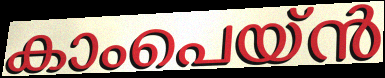
കാംപെയ്ൻ